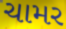
ચામર